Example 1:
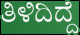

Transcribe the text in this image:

ತಿಳಿದಿದ್ದೆ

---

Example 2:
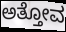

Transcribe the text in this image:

ಅತ್ತೋವ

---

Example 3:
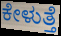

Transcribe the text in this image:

ಕೇಳುತ್ತೆ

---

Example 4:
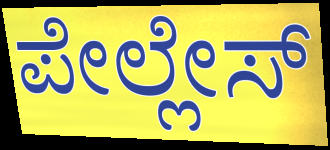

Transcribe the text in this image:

ಪೇಲ್ಲೇಸ್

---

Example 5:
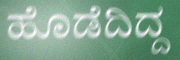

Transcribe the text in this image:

ಹೊಡೆದಿದ್ದ